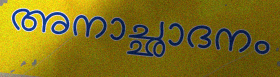
അനാച്ഛാദനം